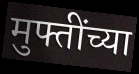
मुफ्तींच्या